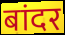
बांदर